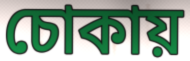
চোকায়